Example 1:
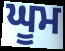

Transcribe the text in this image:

ਘੂਮ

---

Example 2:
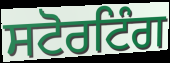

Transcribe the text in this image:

ਸਟੋਰਟਿੰਗ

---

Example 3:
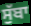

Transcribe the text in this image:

ਸੁੱਬਾ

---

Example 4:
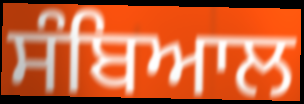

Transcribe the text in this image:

ਸੰਬਿਆਲ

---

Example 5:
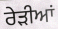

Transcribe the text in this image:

ਰੇੜੀਆਂ